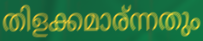
തിളക്കമാര്ന്നതും